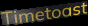
Timetoast